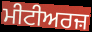
ਮੀਟੀਅਰਜ਼